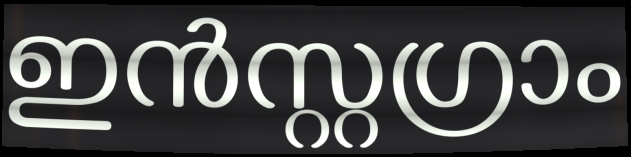
ഇൻസ്റ്റഗ്രാം